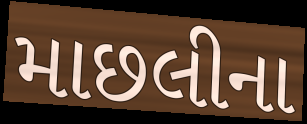
માછલીના